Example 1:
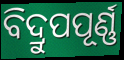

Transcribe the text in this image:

ବିଦ୍ରୁପପୂର୍ଣ୍ଣ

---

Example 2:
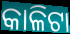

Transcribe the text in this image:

କାଳିଟା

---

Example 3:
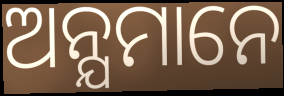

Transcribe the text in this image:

ଅନ୍ଯମାନେ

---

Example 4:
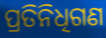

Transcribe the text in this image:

ପ୍ରତିନିଧିଗଣ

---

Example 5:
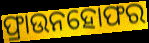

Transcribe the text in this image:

ଫ୍ରାଉନହୋଫର